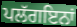
ਪਲੱਗਇਨਾਂ